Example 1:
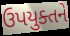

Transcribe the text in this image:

ઉપયુક્તને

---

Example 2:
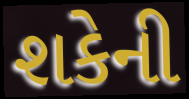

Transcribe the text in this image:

શકેની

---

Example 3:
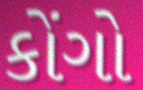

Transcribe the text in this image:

કોંગો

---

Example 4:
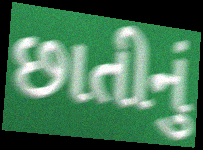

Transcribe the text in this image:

છાતીનું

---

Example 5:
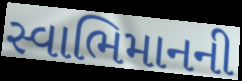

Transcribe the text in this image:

સ્વાભિમાનની